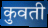
कुवती